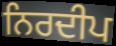
ਨਿਰਦੀਪ